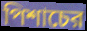
পিশাচের